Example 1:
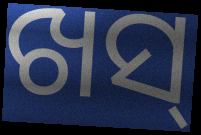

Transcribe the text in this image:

ଖସ୍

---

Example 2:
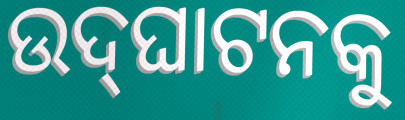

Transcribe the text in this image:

ଉଦ୍‌ଘାଟନକୁ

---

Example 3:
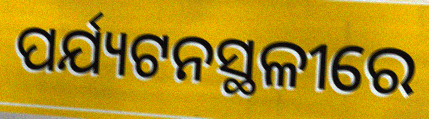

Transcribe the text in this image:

ପର୍ଯ୍ୟଟନସ୍ଥଳୀରେ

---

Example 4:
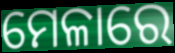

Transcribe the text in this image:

ମେଳାରେ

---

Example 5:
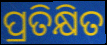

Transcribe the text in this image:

ପ୍ରତିକ୍ଷିତ